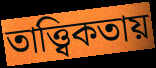
তাত্ত্বিকতায়